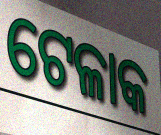
ଟେଳାକ